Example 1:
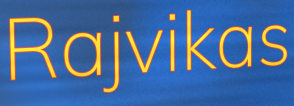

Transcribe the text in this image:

Rajvikas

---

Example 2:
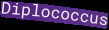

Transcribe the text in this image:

Diplococcus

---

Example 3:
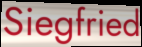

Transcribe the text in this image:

Siegfried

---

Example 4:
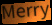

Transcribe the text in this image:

Merry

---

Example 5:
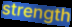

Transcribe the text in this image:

strength